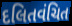
દલિતવંચિત